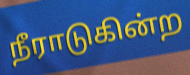
நீராடுகின்ற